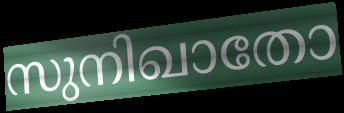
സുനിഖാതോ